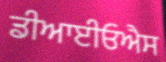
ਡੀਆਈਓਐਸ